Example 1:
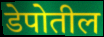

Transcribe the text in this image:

डेपोतील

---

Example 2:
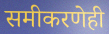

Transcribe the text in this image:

समीकरणेही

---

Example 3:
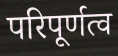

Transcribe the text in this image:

परिपूर्णत्व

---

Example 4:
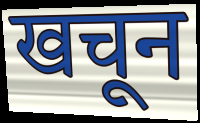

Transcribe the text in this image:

खचून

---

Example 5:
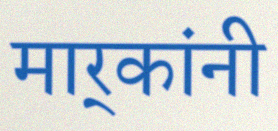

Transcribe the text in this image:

मार्कांनी